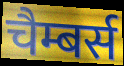
चैम्‍बर्स